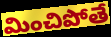
మించిపోతే